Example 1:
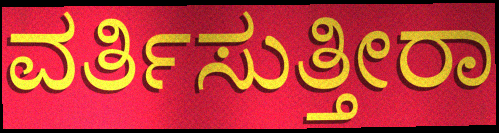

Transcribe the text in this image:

ವರ್ತಿಸುತ್ತೀರಾ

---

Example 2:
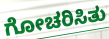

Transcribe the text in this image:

ಗೋಚರಿಸಿತು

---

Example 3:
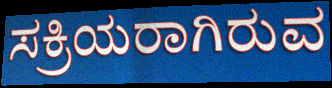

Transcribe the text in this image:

ಸಕ್ರಿಯರಾಗಿರುವ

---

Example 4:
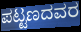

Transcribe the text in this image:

ಪಟ್ಟಣದವರ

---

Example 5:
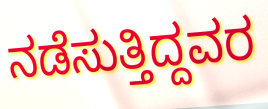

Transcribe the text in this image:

ನಡೆಸುತ್ತಿದ್ದವರ